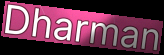
Dharman